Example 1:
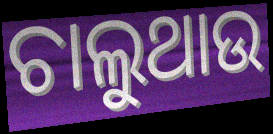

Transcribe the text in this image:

ଚାଲୁଥାଉ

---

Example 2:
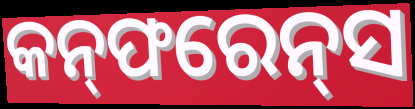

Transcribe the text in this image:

କନ୍‌ଫରେନ୍‌ସ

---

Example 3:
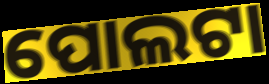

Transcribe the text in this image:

ପୋଲଟା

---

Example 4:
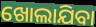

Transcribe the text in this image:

ଖୋଲାଯିବା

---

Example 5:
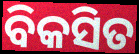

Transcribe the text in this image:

ବିକସିତ